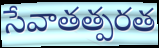
సేవాతత్పరత